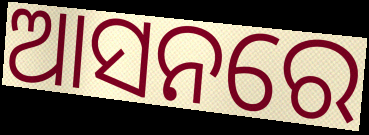
ଆସନରେ